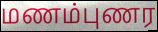
மணம்புணர